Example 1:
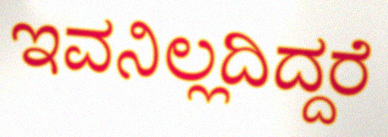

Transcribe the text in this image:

ಇವನಿಲ್ಲದಿದ್ದರೆ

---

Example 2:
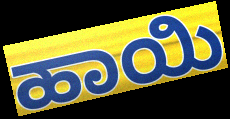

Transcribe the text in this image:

ಹಾಯಿ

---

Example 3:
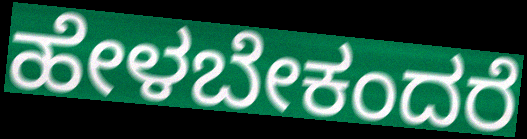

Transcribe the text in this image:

ಹೇಳಬೇಕಂದರೆ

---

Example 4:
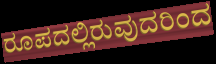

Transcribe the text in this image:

ರೂಪದಲ್ಲಿರುವುದರಿಂದ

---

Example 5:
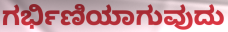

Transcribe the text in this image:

ಗರ್ಭಿಣಿಯಾಗುವುದು